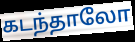
கடந்தாலோ